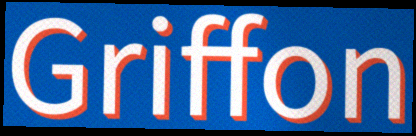
Griffon